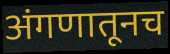
अंगणातूनच